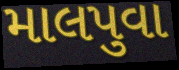
માલપુવા